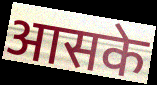
आसके